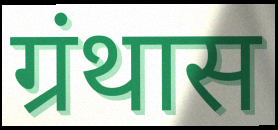
ग्रंथास